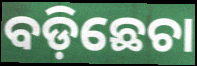
ବଡ଼ିଛେଚା